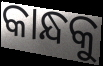
କାନ୍ଧକୁ